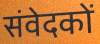
संवेदकों